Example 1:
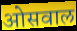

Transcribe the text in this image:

ओसवाल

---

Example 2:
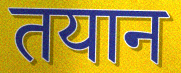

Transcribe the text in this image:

तयान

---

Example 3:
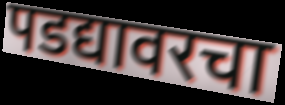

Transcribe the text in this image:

पडद्यावरचा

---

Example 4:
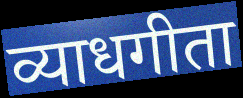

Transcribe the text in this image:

व्याधगीता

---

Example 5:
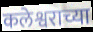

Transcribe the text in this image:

कलेश्वराच्या